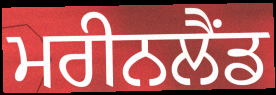
ਮਰੀਨਲੈਂਡ